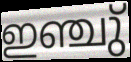
ഇഞ്ചു്